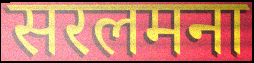
सरलमना